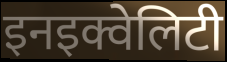
इनइक्वेलिटी